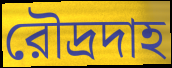
রৌদ্রদাহ